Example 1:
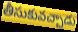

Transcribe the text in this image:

తీసుకువచ్చాడు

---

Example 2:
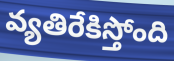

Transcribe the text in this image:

వ్యతిరేకిస్తోంది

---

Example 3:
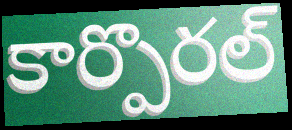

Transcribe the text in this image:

కార్పొరల్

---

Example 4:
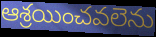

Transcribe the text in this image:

ఆశ్రయించవలెను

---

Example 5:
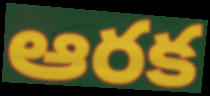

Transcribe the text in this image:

ఆరక